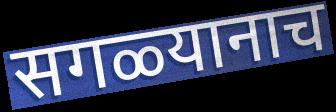
सगळ्यानाच